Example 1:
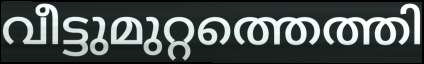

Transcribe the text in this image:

വീട്ടുമുറ്റത്തെത്തി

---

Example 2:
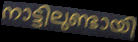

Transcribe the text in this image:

നാട്ടിലുണ്ടായി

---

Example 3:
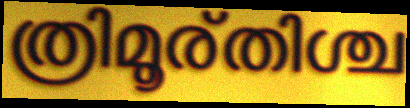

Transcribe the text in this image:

ത്രിമൂര്തിശ്ച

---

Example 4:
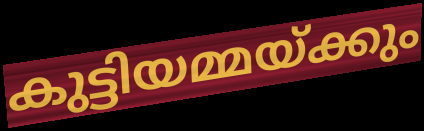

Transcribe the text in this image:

കുട്ടിയമ്മയ്ക്കും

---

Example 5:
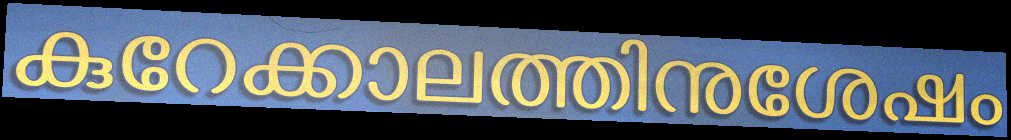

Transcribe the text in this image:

കുറേക്കാലത്തിനുശേഷം